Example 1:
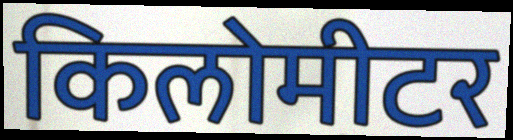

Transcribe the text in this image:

किलोमीटर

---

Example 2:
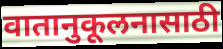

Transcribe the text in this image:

वातानुकूलनासाठी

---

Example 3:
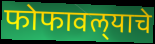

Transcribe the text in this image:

फोफावल्याचे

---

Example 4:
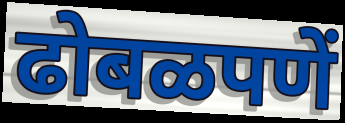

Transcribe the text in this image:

ढोबळपणें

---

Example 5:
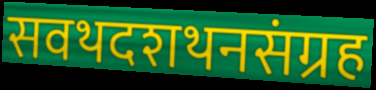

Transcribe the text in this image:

सवथदशथनसंग्रह